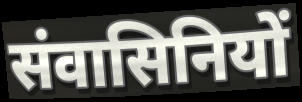
संवासिनियों